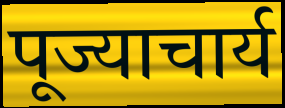
पूज्याचार्य